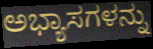
ಅಭ್ಯಾಸಗಳನ್ನು